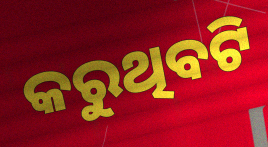
କରୁଥିବଟି